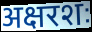
अक्षरशः